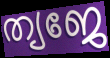
ത്യജേ